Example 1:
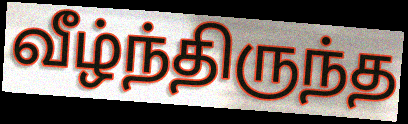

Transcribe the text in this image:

வீழ்ந்திருந்த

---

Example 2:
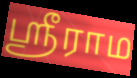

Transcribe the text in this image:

ஸ்ரீராம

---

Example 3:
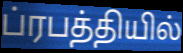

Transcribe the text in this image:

ப்ரபத்தியில்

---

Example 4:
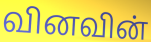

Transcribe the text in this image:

வினவின்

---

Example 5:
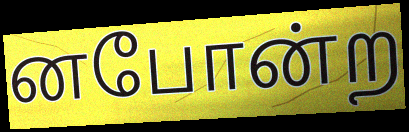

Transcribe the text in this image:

னபோன்ற